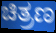
ಚಿತ್ರಣ